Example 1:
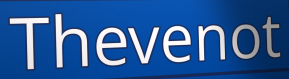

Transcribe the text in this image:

Thevenot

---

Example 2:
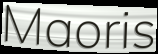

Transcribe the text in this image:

Maoris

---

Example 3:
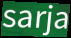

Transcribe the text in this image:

sarja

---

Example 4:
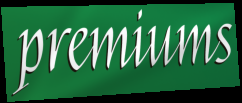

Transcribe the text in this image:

premiums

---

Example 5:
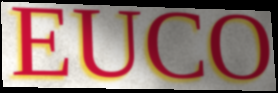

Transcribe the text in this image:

EUCO